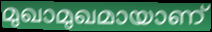
മുഖാമുഖമായാണ്